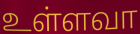
உள்ளவா